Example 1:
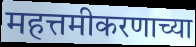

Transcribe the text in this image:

महत्तमीकरणाच्या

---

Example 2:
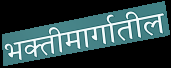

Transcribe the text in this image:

भक्तीमार्गातील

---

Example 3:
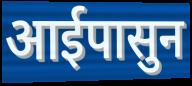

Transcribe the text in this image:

आईपासुन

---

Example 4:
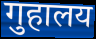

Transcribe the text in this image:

गुहालय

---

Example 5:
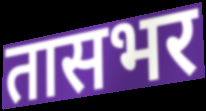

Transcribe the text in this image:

तासभर